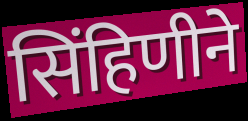
सिंहिणीने